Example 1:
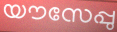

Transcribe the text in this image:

യൗസേപ്പു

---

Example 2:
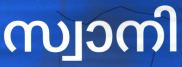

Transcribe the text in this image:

സ്വാനി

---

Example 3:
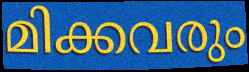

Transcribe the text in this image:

മിക്കവരും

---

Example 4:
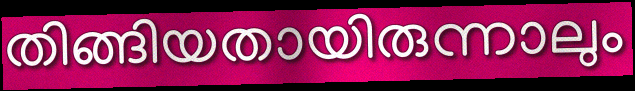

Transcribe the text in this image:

തിങ്ങിയതായിരുന്നാലും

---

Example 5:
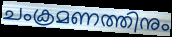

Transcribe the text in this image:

ചംക്രമണത്തിനും